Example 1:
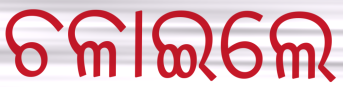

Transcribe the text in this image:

ଚଳାଇଲେ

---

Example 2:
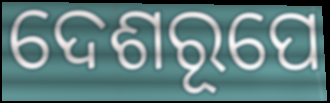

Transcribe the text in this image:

ଦେଶରୂପେ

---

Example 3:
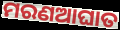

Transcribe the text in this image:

ମରଣଆଘାତ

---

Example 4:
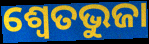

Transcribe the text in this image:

ଶ୍ଵେତଭୁଜା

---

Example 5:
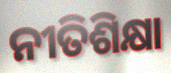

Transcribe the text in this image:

ନୀତିଶିକ୍ଷା